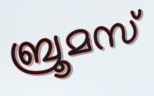
ബ്രൂമസ്